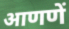
आणणें